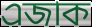
এজাক